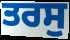
ਤਰਸੁ